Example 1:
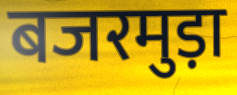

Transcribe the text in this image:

बजरमुड़ा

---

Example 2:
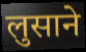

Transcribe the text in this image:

लुसाने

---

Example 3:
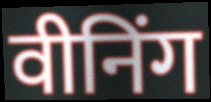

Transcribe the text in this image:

वीनिंग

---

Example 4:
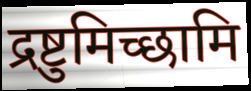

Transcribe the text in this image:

द्रष्टुमिच्छामि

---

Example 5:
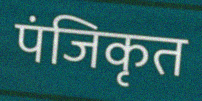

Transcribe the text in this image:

पंजिकृत